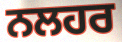
ਨਲਹਰ